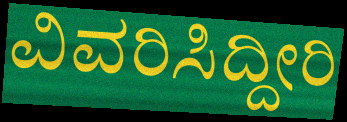
ವಿವರಿಸಿದ್ದೀರಿ